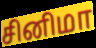
சினிமா